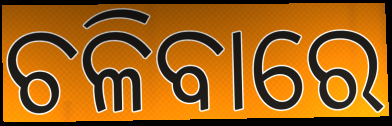
ଚଳିବାରେ